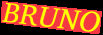
BRUNO